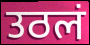
उठलं